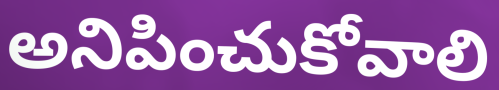
అనిపించుకోవాలి